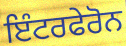
ਇੰਟਰਫੇਰੋਨ